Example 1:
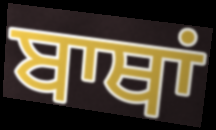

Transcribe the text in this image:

ਬਾਥਾਂ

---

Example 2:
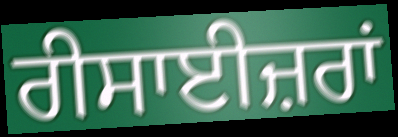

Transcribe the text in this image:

ਰੀਸਾਈਜ਼ਰਾਂ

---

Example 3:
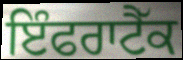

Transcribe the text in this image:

ਇੰਫਰਾਟੈੱਕ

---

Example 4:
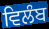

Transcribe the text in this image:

ਵਿਲੰਬ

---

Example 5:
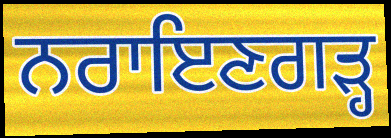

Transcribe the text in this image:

ਨਰਾਇਣਗੜ੍ਹ